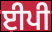
ਈਪੀ